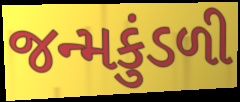
જન્મકુંડળી